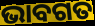
ଭାବଗତ